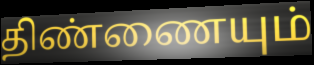
திண்ணையும்